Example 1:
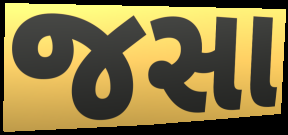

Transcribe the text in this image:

જસા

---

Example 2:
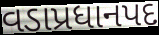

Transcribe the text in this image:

વડાપ્રધાનપદ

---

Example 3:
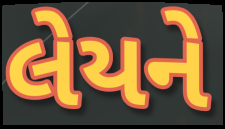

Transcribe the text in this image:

લેયને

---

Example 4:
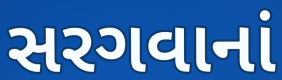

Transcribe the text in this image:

સરગવાનાં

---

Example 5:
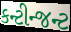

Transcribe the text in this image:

કન્ટીન્જન્ટ